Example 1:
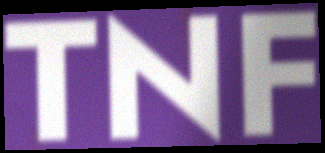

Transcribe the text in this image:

TNF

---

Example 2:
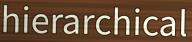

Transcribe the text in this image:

hierarchical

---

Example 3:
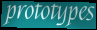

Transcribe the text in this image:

prototypes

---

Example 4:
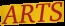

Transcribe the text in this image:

ARTS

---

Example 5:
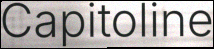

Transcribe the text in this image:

Capitoline